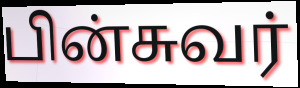
பின்சுவர்